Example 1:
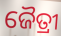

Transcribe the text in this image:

ଜୈତ୍ରୀ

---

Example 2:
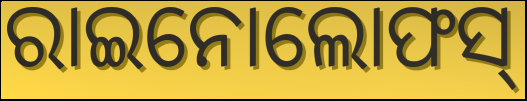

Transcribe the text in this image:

ରାଇନୋଲୋଫସ୍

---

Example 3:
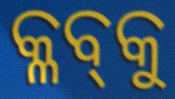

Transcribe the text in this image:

କ୍ଳବ୍‍କୁ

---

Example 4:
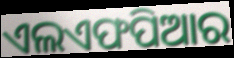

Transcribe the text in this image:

ଏଲଏଫପିଆର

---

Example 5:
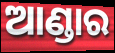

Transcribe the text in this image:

ଆଣ୍ଡାର